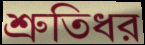
শ্রুতিধর